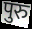
पुरु